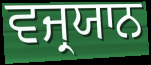
ਵਜ੍ਰਯਾਨ